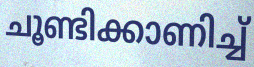
ചൂണ്ടിക്കാണിച്ച്